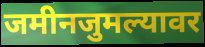
जमीनजुमल्यावर